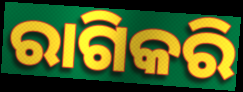
ରାଗିକରି